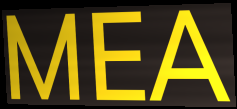
MEA